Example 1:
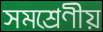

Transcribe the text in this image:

সমশ্রেণীয়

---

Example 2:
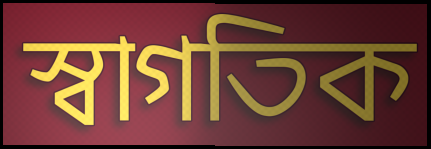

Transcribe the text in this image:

স্বাগতিক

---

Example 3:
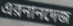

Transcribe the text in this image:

এরনানদেজ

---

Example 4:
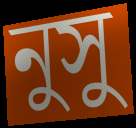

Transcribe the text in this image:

নুসু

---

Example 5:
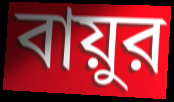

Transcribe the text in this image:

বায়ুর